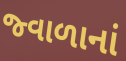
જ્વાળાનાં